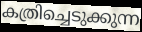
കത്രിച്ചെടുക്കുന്ന